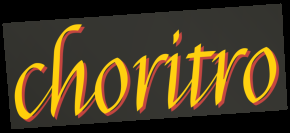
choritro